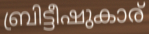
ബ്രിട്ടീഷുകാര്